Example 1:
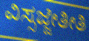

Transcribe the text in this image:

ವಿಸ್ಸಜ್ಜೇತೀತಿ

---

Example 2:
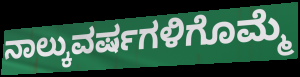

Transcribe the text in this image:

ನಾಲ್ಕುವರ್ಷಗಳಿಗೊಮ್ಮೆ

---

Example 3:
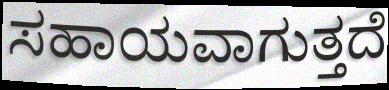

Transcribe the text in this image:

ಸಹಾಯವಾಗುತ್ತದೆ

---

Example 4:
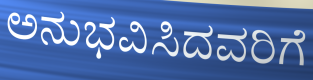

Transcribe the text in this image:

ಅನುಭವಿಸಿದವರಿಗೆ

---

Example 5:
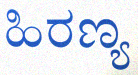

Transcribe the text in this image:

ಹಿರಣ್ಯ